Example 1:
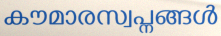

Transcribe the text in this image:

കൗമാരസ്വപ്നങ്ങൾ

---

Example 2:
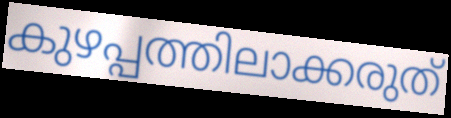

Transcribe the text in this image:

കുഴപ്പത്തിലാക്കരുത്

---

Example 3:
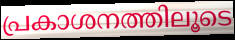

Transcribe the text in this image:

പ്രകാശനത്തിലൂടെ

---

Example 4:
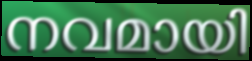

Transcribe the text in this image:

നവമായി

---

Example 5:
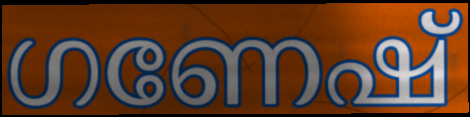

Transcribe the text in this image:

ഗണേഷ്